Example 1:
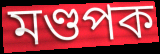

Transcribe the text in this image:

মণ্ডপক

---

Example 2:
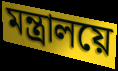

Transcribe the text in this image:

মন্ত্ৰালয়ে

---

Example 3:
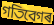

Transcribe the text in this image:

গতিবেগৰ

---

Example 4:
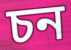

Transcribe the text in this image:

চন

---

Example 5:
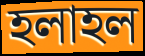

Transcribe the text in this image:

হলাহল